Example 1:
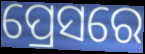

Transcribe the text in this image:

ପ୍ରେସରେ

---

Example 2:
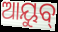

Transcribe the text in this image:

ଆୟୁବ୍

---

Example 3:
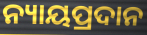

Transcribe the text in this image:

ନ୍ୟାୟପ୍ରଦାନ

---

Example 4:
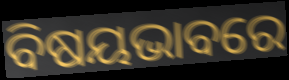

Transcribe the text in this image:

ବିଷୟଭାବରେ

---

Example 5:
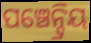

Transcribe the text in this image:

ପଞ୍ଚେନ୍ଦ୍ରିୟ